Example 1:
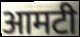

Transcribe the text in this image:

आमटी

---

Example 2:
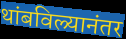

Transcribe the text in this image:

थांबविल्यानंतर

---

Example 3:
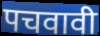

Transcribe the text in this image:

पचवावी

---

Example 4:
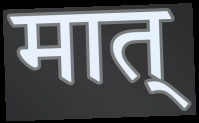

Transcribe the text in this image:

मात्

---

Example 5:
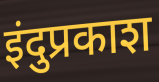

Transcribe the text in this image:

इंदुप्रकाश